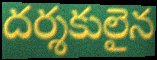
దర్శకులైన